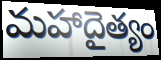
మహాదైత్యం